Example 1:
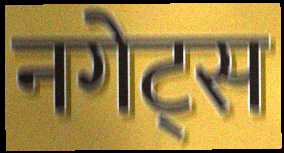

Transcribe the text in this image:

नगेट्स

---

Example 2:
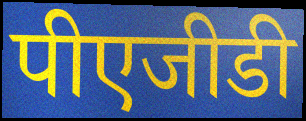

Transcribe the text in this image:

पीएजीडी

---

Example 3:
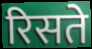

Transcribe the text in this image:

रिसते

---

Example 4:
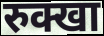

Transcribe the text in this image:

रुक्खा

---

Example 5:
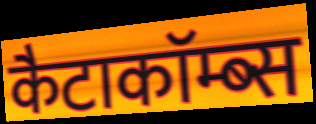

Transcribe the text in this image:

कैटाकॉम्ब्स